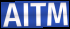
AITM